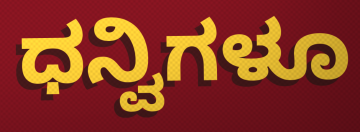
ಧನ್ವಿಗಳೂ